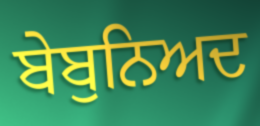
ਬੇਬੁਨਿਅਦ